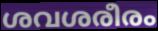
ശവശരീരം